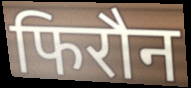
फिरौन